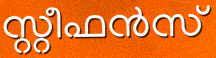
സ്റ്റീഫൻസ്